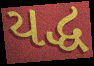
યદ્ધ